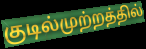
குடில்முற்றத்தில்